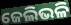
ଜେଲିଭଳି